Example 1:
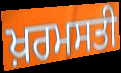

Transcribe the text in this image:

ਖ਼ਰਮਸਤੀ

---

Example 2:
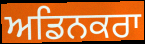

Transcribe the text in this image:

ਅਡਿਨਕਰਾ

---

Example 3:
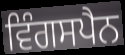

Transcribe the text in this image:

ਵਿੰਗਸਪੈਨ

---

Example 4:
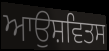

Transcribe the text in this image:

ਆਉਸ਼ਵਿਤਸ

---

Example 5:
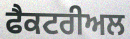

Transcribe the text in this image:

ਫੈਕਟਰੀਅਲ